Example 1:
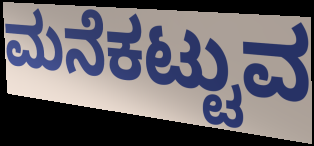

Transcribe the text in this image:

ಮನೆಕಟ್ಟುವ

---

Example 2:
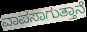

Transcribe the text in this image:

ವಾಪಸಾಗುತ್ತಾನೆ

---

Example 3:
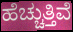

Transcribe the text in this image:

ಹೆಚ್ಚುತ್ತಿವೆ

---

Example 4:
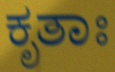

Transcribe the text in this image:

ಕೃತಾಃ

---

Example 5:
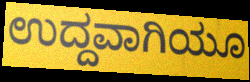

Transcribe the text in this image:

ಉದ್ದವಾಗಿಯೂ